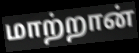
மாற்றான்